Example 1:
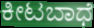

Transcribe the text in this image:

ಕೀಟಬಾಧೆ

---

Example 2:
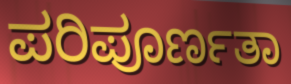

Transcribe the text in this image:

ಪರಿಪೂರ್ಣತಾ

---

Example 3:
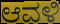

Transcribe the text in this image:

ಆವಳಿ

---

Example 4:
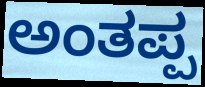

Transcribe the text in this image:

ಅಂತಪ್ಪ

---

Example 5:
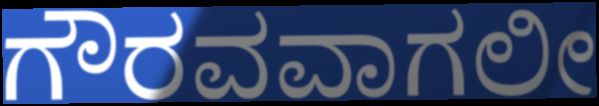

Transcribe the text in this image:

ಗೌರವವಾಗಲೀ